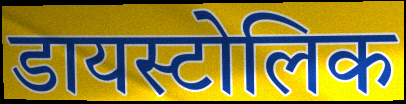
डायस्टोलिक